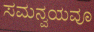
ಸಮನ್ವಯವೂ